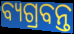
ବ୍ୟଗ୍ରବନ୍ତ